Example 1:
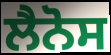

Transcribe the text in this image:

ਲੈਨੋਸ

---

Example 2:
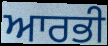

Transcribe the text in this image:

ਆਰਭੀ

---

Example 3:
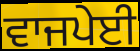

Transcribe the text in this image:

ਵਾਜਪੇਈ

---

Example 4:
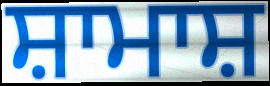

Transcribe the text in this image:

ਸ਼ਾਮਾਸ਼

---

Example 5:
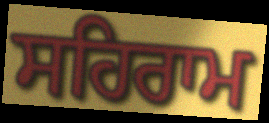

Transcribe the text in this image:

ਸਹਿਰਾਮ